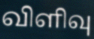
விளிவு